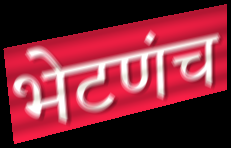
भेटणंच